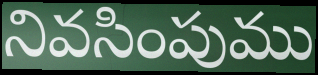
నివసింపుము